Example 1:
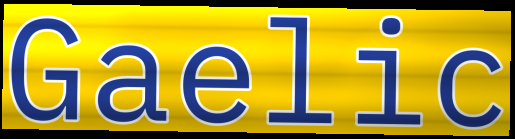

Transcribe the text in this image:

Gaelic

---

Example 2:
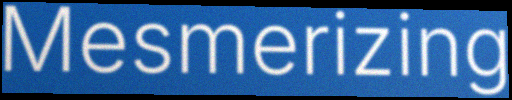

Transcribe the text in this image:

Mesmerizing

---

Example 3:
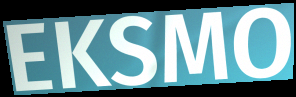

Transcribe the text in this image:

EKSMO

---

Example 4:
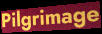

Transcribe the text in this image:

Pilgrimage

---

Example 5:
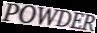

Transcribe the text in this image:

POWDER